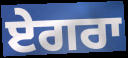
ਏਗਰਾ